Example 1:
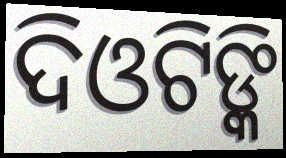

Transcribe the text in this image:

ଦିଓଟିଙ୍କି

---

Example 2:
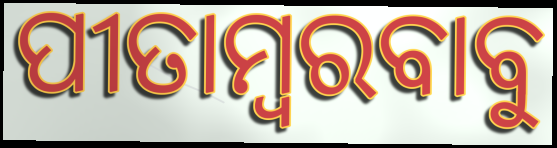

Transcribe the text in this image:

ପୀତାମ୍ବରବାବୁ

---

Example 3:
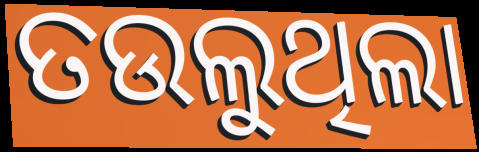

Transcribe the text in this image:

ତଉଲୁଥିଲା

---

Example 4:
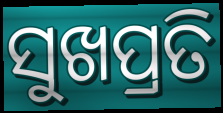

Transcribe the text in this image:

ସୁଖପ୍ରତି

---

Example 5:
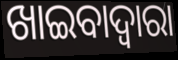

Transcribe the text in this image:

ଖାଇବାଦ୍ୱାରା